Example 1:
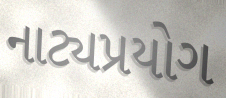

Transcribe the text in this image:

નાટ્યપ્રયોગ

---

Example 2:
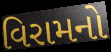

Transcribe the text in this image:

વિરામનો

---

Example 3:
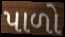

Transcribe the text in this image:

પાળો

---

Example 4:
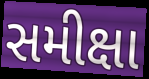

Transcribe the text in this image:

સમીક્ષા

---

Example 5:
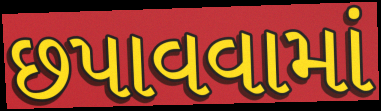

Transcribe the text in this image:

છપાવવામાં